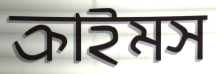
ক্রাইমস